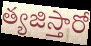
త్యజిస్తారో